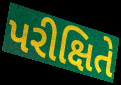
પરીક્ષિતે